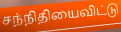
சந்நிதியைவிட்டு